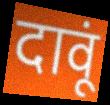
दावूं